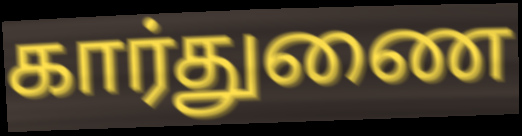
கார்துணை